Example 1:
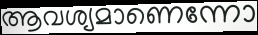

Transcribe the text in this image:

ആവശ്യമാണെന്നോ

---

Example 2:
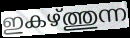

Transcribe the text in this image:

ഇകഴ്ത്തുന്ന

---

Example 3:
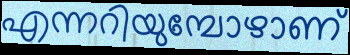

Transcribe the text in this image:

എന്നറിയുമ്പോഴാണ്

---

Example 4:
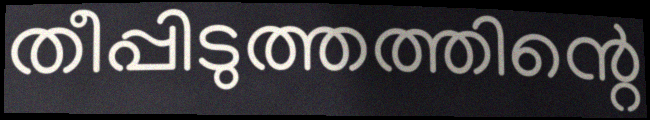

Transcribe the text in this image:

തീപ്പിടുത്തത്തിന്റെ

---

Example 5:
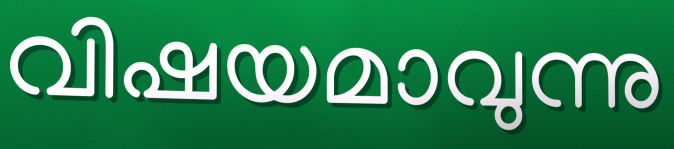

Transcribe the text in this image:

വിഷയമാവുന്നു